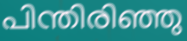
പിന്തിരിഞ്ഞു